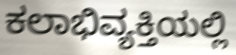
ಕಲಾಭಿವ್ಯಕ್ತಿಯಲ್ಲಿ